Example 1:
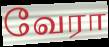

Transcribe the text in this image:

வேரா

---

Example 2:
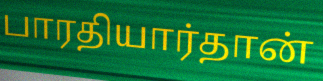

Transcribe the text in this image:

பாரதியார்தான்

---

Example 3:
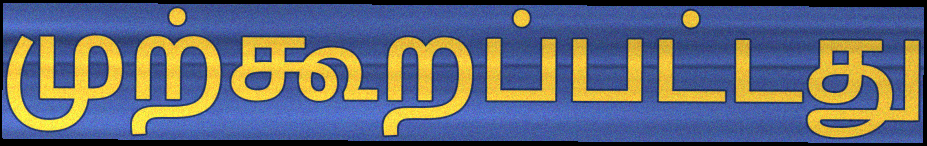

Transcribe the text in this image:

முற்கூறப்பட்டது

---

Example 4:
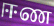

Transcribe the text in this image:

ஈண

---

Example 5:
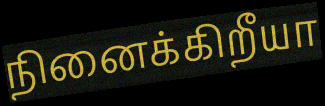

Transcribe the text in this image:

நினைக்கிறீயா